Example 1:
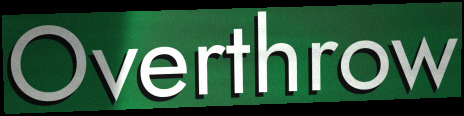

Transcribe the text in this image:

Overthrow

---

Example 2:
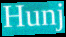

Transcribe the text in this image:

Hunj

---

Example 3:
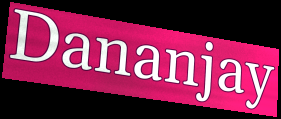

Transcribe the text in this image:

Dananjay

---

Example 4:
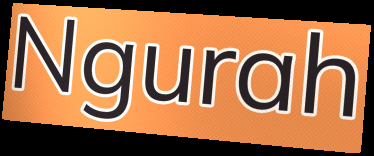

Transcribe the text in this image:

Ngurah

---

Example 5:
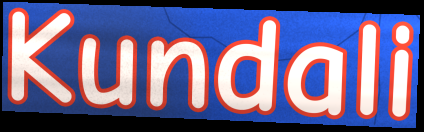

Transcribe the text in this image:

Kundali